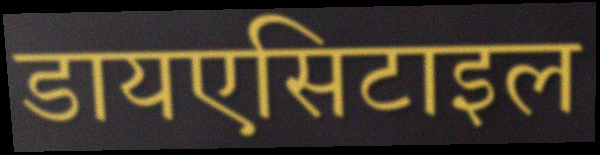
डायएसिटाइल